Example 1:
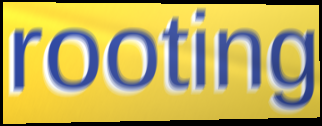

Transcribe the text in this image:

rooting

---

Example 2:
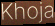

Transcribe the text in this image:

Khoja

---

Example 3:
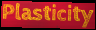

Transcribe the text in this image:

Plasticity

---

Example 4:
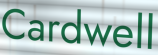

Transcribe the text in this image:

Cardwell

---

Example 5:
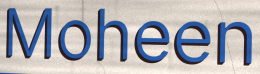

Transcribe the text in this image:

Moheen